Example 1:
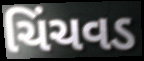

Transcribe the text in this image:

ચિંચવડ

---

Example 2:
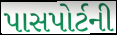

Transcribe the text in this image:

પાસપોર્ટની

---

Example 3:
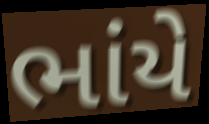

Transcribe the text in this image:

ભાંયે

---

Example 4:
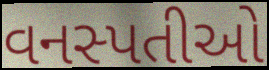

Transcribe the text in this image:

વનસ્પતીઓ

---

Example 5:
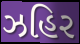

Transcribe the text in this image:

ઝહિર